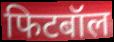
फिटबॉल